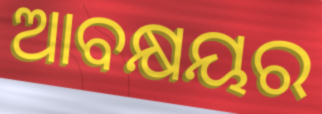
ଆବକ୍ଷୟର